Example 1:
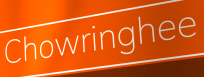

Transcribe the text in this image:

Chowringhee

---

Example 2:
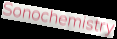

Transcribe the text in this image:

Sonochemistry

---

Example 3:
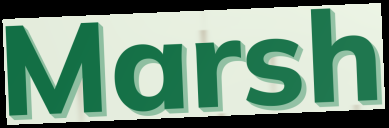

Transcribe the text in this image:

Marsh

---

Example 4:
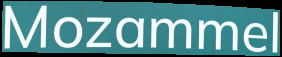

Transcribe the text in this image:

Mozammel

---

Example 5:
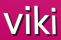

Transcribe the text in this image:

viki